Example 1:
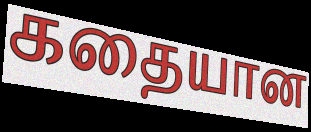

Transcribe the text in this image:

கதையான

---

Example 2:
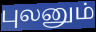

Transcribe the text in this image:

புலனும்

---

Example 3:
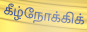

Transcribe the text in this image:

கீழ்நோக்கிக்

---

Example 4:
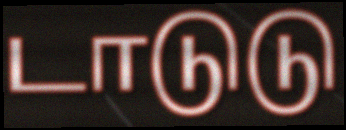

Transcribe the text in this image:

டாடுடு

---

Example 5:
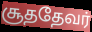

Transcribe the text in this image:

சூததேவர்